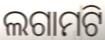
ଲଗାମଟି